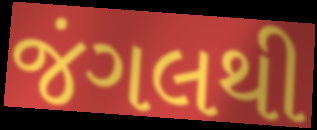
જંગલથી